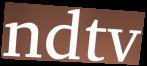
ndtv